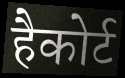
हैकोर्ट